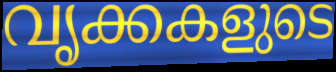
വൃക്കകളുടെ